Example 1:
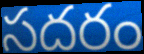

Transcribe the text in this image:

సదరం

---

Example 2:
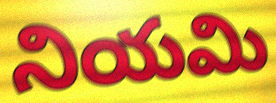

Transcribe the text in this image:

నియమి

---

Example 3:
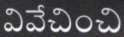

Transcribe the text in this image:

వివేచించి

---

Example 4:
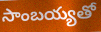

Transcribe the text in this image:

సాంబయ్యతో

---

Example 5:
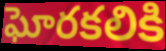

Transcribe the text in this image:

ఘోరకలికి